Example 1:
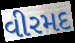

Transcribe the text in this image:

વીરમદ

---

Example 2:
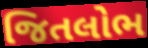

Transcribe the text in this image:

જિતલોભ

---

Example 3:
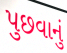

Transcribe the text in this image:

પુછવાનું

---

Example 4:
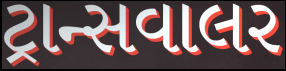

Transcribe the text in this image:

ટ્રાન્સવાલર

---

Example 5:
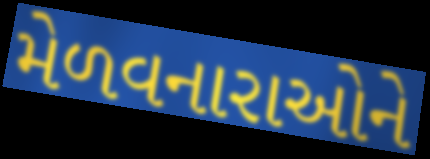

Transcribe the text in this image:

મેળવનારાઓને